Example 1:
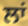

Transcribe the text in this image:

ਲਾਂ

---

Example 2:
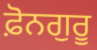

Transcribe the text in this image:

ਫ਼ੋਨਗੁਰੂ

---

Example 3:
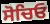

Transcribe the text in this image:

ਸੋਚਿਓ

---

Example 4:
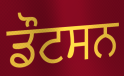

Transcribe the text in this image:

ਡੌਟਸਨ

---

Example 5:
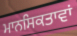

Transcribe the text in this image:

ਮਾਨਸਿਕਤਾਵਾਂ